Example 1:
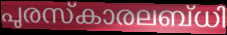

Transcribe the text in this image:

പുരസ്‌കാരലബ്ധി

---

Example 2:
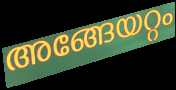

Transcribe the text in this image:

അങ്ങേയറ്റം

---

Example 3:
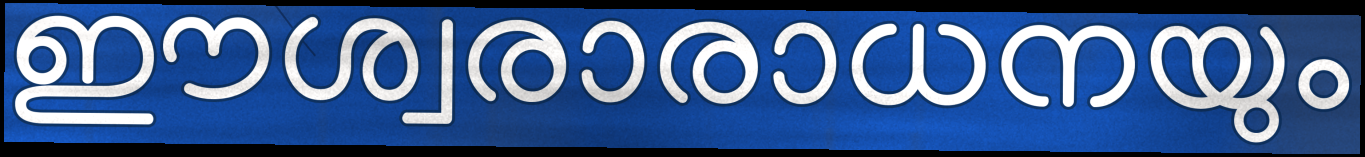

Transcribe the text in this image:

ഈശ്വരാരാധനയും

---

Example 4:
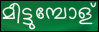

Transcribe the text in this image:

മീട്ടുമ്പോള്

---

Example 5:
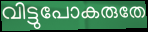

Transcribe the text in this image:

വിട്ടുപോകരുതേ